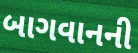
બાગવાનની